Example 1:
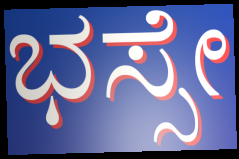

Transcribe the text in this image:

ಭಸ್ಸೇ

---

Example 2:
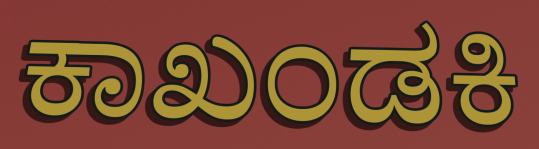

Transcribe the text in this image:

ಕಾಖಂಡಕಿ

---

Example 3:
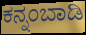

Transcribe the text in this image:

ಕನ್ನಂಬಾಡಿ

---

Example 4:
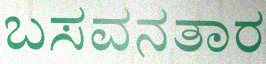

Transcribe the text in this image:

ಬಸವನತಾರ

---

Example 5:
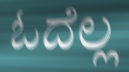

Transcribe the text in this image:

ಓದೆಲ್ಲ